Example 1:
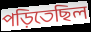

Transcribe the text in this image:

পড়িতেছিল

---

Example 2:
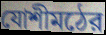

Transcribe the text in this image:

যোশীমঠের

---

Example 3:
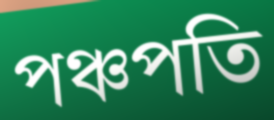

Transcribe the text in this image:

পঞ্চপতি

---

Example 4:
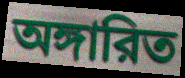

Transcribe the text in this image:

অঙ্গারিত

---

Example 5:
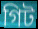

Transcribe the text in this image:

গিট